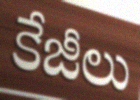
కేజీలు